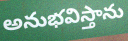
అనుభవిస్తాను